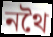
নথৈ